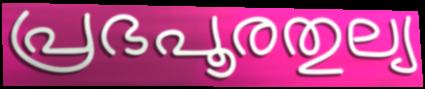
പ്രഭപൂരതുല്യ